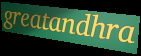
greatandhra